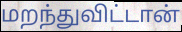
மறந்துவிட்டான்